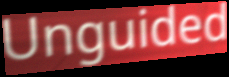
Unguided